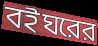
বইঘরের